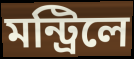
মন্ট্রিলে